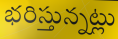
భరిస్తున్నట్లు